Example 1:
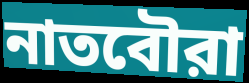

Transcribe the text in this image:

নাতবৌরা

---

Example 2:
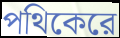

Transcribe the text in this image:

পথিকেরে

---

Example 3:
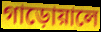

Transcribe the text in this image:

গাড়োয়ালে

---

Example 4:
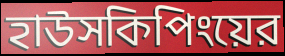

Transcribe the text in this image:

হাউসকিপিংয়ের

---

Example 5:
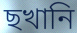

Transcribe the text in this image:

ছখানি